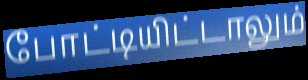
போட்டியிட்டாலும்